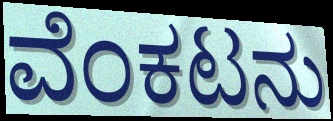
ವೆಂಕಟನು